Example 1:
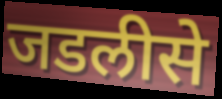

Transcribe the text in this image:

जडलीसे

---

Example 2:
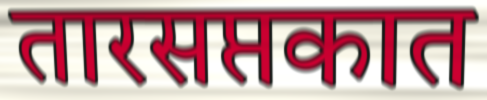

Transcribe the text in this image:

तारसप्तकात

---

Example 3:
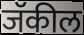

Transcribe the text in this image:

जॅकील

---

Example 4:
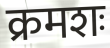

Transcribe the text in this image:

क्रमशः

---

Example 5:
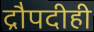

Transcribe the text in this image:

द्रौपदीही